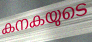
കനകയുടെ